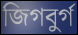
জিগবুর্গ